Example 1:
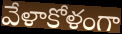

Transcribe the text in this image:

వేళాకోళంగా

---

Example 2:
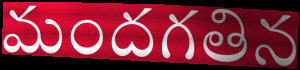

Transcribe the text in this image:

మందగతిన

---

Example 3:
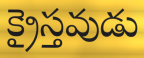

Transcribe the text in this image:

క్రైస్తవుడు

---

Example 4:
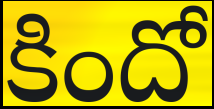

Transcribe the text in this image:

కిందో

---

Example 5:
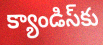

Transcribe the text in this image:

క్యాండిస్‌కు